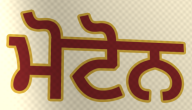
ਮੋਟੋਨ